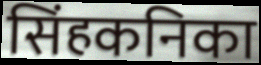
सिंहकनिका